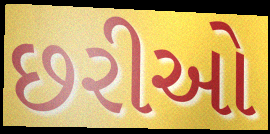
છરીઓ